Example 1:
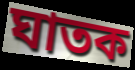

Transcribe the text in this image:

ঘাতক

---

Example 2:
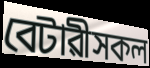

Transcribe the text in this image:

বেটাৱীসকল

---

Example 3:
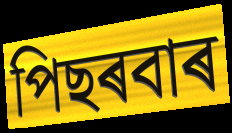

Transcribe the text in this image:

পিছৰবাৰ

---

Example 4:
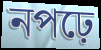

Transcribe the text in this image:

নপঢ়ে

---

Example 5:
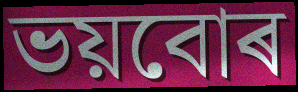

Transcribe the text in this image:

ভয়বোৰ